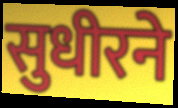
सुधीरने